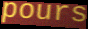
pours